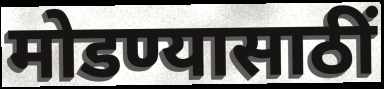
मोडण्यासाठीं